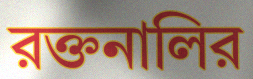
রক্তনালির